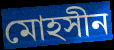
মোহসীন